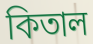
কিতাল